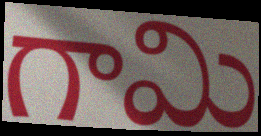
గామి